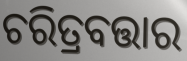
ଚରିତ୍ରବତ୍ତାର